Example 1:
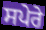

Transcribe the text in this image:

ਸਪੇਰੇ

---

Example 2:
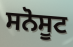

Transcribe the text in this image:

ਸਨੋਸੂਟ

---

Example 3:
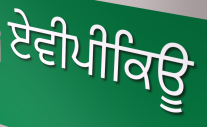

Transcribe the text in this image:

ਏਵੀਪੀਕਿਊ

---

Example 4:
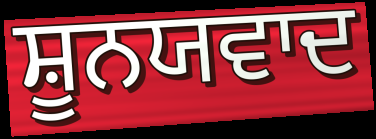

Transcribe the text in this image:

ਸ਼ੂਨਯਵਾਦ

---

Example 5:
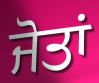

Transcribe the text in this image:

ਜੋਤਾਂ